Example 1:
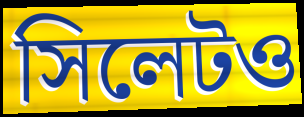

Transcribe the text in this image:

সিলেটও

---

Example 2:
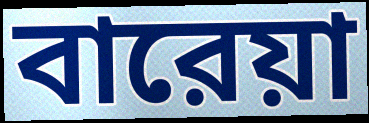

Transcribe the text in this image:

বারেয়া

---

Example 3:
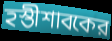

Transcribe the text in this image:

হস্তীশাবকের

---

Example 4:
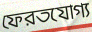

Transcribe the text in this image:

ফেরতযোগ্য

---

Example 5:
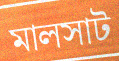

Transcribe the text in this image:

মালসাট